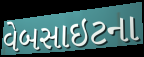
વેબસાઇટના